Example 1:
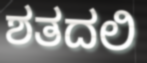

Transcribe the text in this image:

ಶತದಲಿ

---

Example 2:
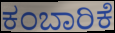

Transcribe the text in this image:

ಕಂಬಾರಿಕೆ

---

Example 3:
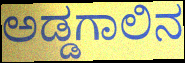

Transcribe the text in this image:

ಅಡ್ಡಗಾಲಿನ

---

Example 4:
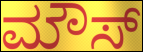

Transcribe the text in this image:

ಮೌಸ್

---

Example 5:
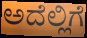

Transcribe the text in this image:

ಅದೆಲ್ಲಿಗೆ